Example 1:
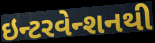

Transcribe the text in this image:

ઇન્ટરવેન્શનથી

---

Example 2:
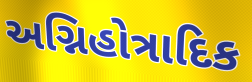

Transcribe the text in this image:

અગ્નિહોત્રાદિક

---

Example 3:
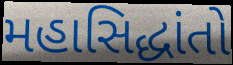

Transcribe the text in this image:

મહાસિદ્ધાંતો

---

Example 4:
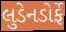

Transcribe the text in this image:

લુડેનડોર્ફે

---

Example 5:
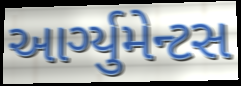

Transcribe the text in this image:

આર્ગ્યુમેન્ટસ